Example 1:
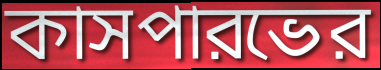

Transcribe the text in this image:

কাসপারভের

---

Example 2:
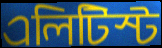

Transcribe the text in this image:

এলিটিস্ট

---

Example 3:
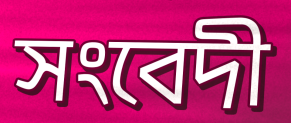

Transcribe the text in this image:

সংবেদী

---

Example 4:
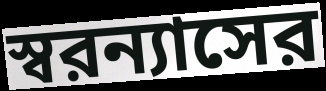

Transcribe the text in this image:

স্বরন্যাসের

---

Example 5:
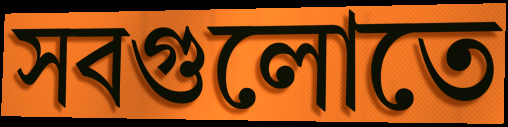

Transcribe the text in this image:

সবগুলোতে